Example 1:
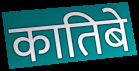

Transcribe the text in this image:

कातिबे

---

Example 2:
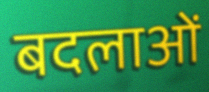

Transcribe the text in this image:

बदलाओं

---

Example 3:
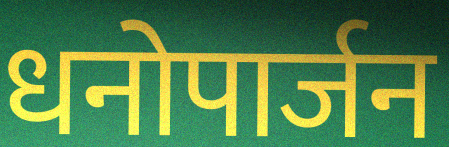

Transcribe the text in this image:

धनोपार्जन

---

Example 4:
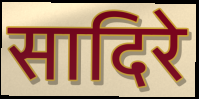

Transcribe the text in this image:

सादिरे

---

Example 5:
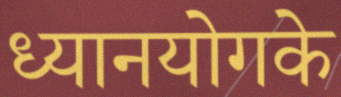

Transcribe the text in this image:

ध्यानयोगके